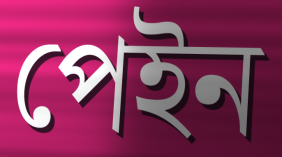
পেইন